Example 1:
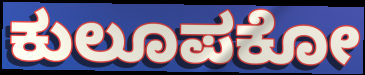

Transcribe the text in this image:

ಕುಲೂಪಕೋ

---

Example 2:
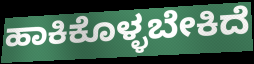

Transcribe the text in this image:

ಹಾಕಿಕೊಳ್ಳಬೇಕಿದೆ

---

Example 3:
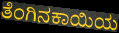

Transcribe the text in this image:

ತೆಂಗಿನಕಾಯಿಯ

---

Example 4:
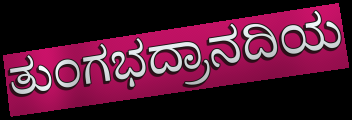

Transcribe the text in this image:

ತುಂಗಭದ್ರಾನದಿಯ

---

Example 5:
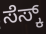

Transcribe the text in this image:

ಸೆಸ್ಕ್